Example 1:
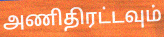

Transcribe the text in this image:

அணிதிரட்டவும்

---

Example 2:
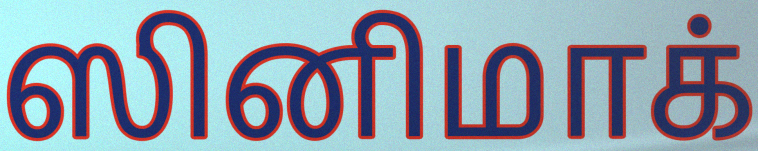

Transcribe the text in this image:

ஸினிமாக்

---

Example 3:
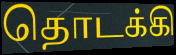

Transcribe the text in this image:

தொடக்கி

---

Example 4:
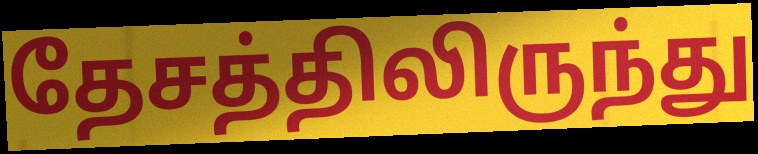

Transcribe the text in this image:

தேசத்திலிருந்து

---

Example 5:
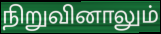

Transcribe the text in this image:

நிறுவினாலும்